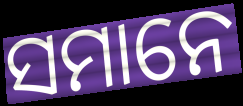
ସମାନେ